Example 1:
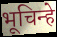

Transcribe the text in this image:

भूचिन्हे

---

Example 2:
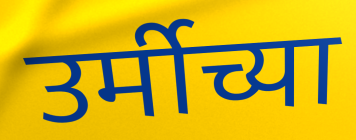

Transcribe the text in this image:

उर्मीच्या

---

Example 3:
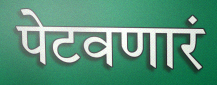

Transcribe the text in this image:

पेटवणारं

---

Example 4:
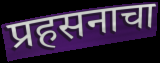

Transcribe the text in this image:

प्रहसनाचा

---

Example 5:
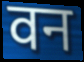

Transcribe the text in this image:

वन